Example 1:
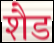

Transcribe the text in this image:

शैड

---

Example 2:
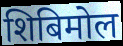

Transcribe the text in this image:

शिबिमोल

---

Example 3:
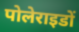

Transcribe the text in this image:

पोलेराइडों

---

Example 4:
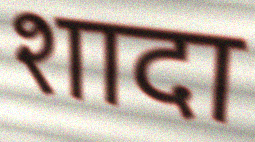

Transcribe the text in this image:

शादा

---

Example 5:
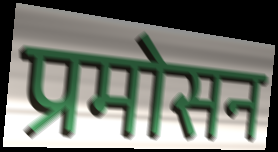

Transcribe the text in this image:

प्रमोसन